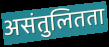
असंतुलितता